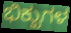
ಭಿಕ್ಖುಗಳ